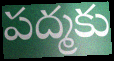
పద్మకు